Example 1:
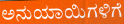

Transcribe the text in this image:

ಅನುಯಾಯಿಗಳಿಗೆ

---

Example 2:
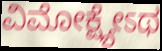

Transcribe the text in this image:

ವಿಮೋಕ್ಷ್ಯೇಽಥ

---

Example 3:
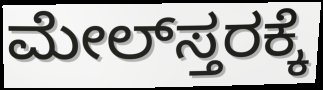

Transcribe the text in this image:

ಮೇಲ್‌ಸ್ತರಕ್ಕೆ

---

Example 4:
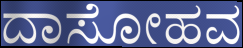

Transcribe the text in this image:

ದಾಸೋಹವ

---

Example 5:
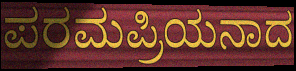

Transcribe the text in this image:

ಪರಮಪ್ರಿಯನಾದ